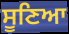
ਸੂਣਿਆ